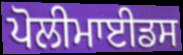
ਪੋਲੀਮਾਈਡਸ